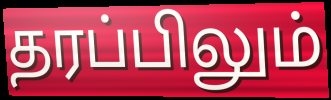
தரப்பிலும்